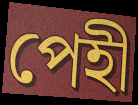
পেহী